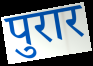
पुरार